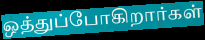
ஒத்துப்போகிறார்கள்